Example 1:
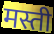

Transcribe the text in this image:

मस्ती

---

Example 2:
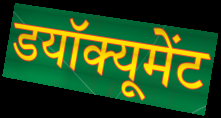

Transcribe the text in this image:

डयॉक्‍यूमेंट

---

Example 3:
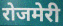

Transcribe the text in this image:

रोजमेरी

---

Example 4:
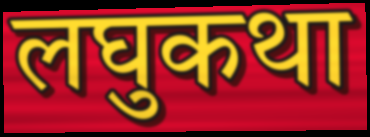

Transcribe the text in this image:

लघुकथा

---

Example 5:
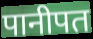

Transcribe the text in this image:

पानीपत